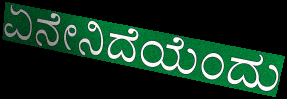
ಏನೇನಿದೆಯೆಂದು